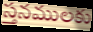
స్తనములకు